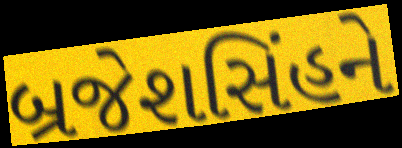
બ્રજેશસિંહને